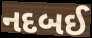
નદબઈ